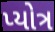
પ્યોત્ર